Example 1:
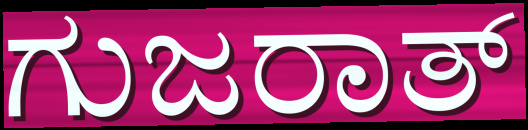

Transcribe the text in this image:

ಗುಜರಾತ್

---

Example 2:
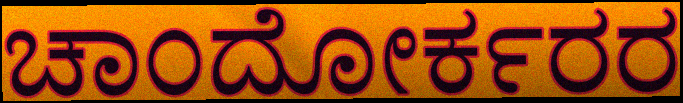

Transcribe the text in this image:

ಚಾಂದೋರ್ಕರರ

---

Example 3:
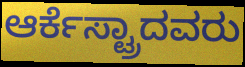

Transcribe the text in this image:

ಆರ್ಕೆಸ್ಟ್ರಾದವರು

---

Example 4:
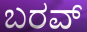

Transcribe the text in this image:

ಬರವ್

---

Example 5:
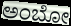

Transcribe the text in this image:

ಅಂಬೋ